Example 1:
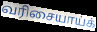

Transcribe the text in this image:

வரிசையாய்க்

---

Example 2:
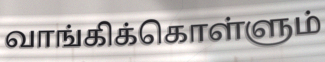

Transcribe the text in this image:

வாங்கிக்கொள்ளும்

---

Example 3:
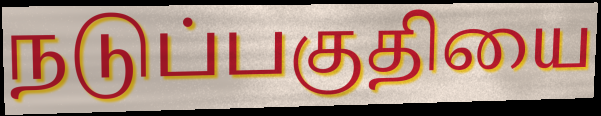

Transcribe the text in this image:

நடுப்பகுதியை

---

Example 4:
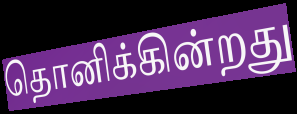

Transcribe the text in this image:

தொனிக்கின்றது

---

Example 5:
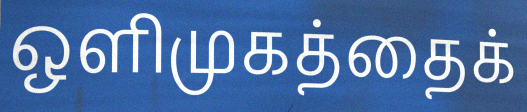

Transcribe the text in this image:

ஒளிமுகத்தைக்